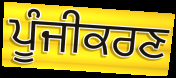
ਪੂੰਜੀਕਰਣ